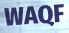
WAQF